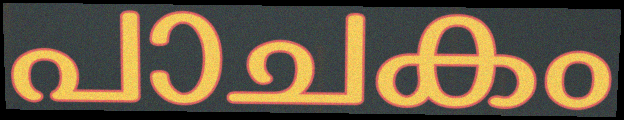
പാചകം